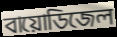
বায়োডিজেল